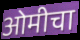
ओमीचा